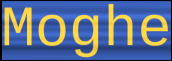
Moghe